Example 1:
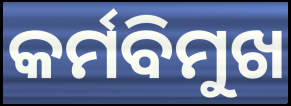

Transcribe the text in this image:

କର୍ମବିମୁଖ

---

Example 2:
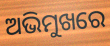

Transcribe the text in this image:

ଅଭିମୁଖରେ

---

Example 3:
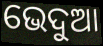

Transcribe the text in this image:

ଭେଦୁଆ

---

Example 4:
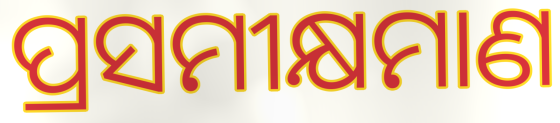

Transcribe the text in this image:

ପ୍ରସମୀକ୍ଷମାଣ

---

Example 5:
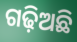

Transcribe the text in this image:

ଗଢ଼ିଅଛି